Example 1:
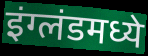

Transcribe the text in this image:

इंग्लंडमध्ये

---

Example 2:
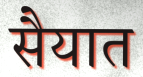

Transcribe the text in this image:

सैयात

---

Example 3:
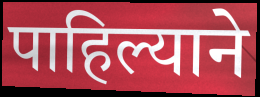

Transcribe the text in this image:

पाहिल्याने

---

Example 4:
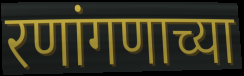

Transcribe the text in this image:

रणांगणाच्या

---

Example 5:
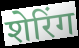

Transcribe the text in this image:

शेरिंग